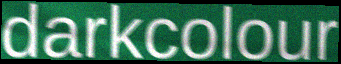
darkcolour